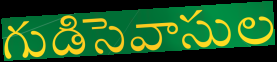
గుడిసెవాసుల